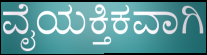
ವೈಯಕ್ತಿಕವಾಗಿ